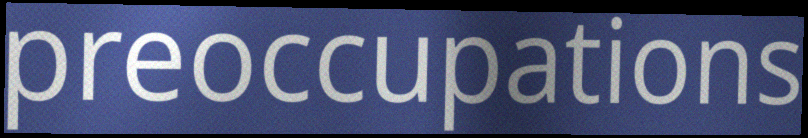
preoccupations